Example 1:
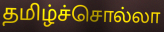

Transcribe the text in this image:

தமிழ்ச்சொல்லா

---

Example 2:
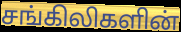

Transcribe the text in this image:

சங்கிலிகளின்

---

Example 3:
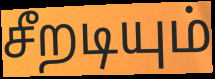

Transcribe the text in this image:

சீறடியும்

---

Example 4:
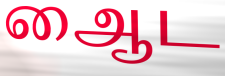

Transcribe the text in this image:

ஆைட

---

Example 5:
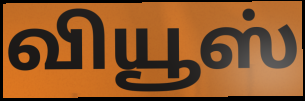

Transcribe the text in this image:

வியூஸ்